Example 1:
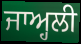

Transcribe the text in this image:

ਜਾਅ੍ਹਲੀ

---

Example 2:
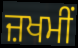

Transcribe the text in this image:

ਜ਼ਖਮੀਂ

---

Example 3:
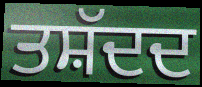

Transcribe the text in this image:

ਤਸ਼ੱਦਦ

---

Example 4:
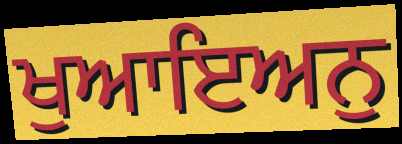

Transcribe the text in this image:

ਖੁਆਇਅਨੁ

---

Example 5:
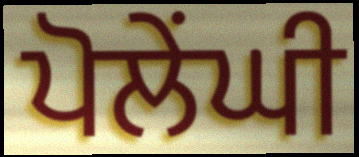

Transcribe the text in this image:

ਪੋਲੇਂਘੀ